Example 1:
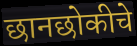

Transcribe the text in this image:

छानछोकीचे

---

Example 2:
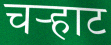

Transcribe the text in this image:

चऱ्हाट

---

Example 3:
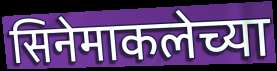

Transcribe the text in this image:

सिनेमाकलेच्या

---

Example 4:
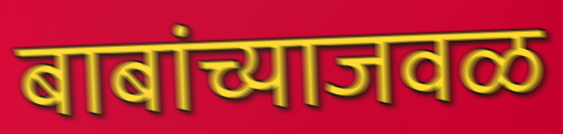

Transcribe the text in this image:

बाबांच्याजवळ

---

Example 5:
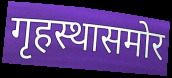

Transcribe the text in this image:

गृहस्थासमोर